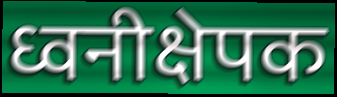
ध्वनीक्षेपक